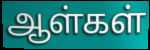
ஆள்கள்